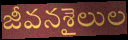
జీవనశైలుల